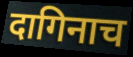
दागिनाच